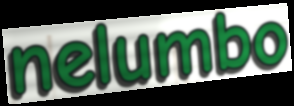
nelumbo